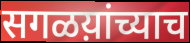
सगळय़ांच्याच